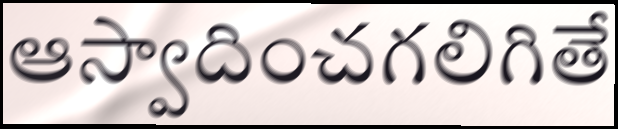
ఆస్వాదించగలిగితే